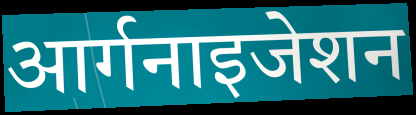
आर्गनाइजेशन